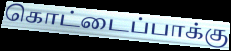
கொட்டைப்பாக்கு